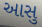
આસુ